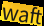
waft